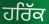
ਹਰਿੱਕ